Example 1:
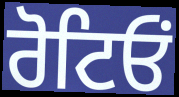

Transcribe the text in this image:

ਰੋਟਿਓਂ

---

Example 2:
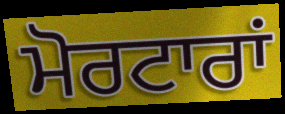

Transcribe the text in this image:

ਮੋਰਟਾਰਾਂ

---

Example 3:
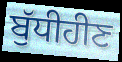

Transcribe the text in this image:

ਬੁੱਧੀਹੀਣ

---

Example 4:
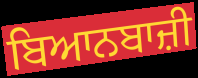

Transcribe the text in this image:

ਬਿਆਨਬਾਜ਼ੀ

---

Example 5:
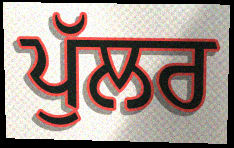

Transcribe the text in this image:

ਪੁੱਲਰ